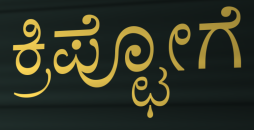
ಕ್ರಿಪ್ಟೋಗೆ